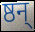
ष्ठन्